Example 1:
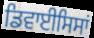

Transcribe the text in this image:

ਡਿਵਾਈਸਿਸਾਂ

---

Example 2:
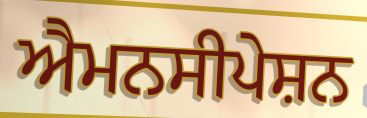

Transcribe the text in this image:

ਐਮਨਸੀਪੇਸ਼ਨ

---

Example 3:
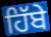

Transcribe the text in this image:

ਹਿੱਬੇ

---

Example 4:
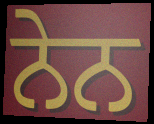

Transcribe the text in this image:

ਨੇਨ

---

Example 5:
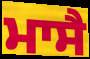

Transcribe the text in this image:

ਮਾਸੈ